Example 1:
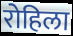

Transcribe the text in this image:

रोहिला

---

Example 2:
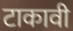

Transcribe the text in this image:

टाकावी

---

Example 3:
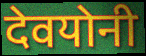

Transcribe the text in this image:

देवयोनी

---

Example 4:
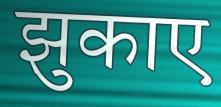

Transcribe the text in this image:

झुकाए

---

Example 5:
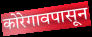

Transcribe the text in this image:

कोरेगावपासून